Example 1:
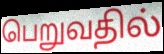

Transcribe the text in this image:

பெறுவதில்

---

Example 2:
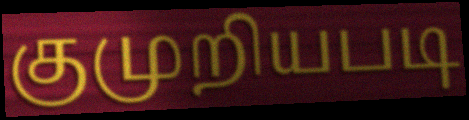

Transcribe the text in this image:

குமுறியபடி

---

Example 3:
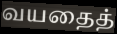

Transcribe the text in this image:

வயதைத்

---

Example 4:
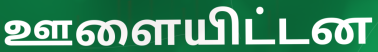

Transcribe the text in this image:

ஊளையிட்டன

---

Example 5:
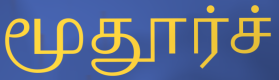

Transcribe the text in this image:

மூதூர்ச்